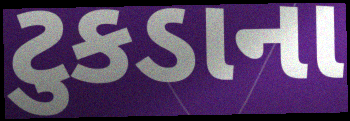
ટુકડાના